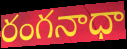
రంగనాధా